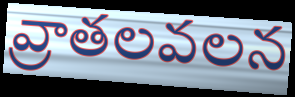
వ్రాతలవలన